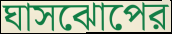
ঘাসঝোপের